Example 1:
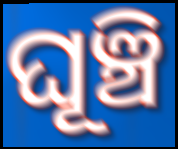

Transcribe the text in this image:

ଘୂଞ୍ଚି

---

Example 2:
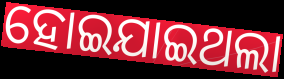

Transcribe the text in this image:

ହୋଇଯାଇଥଲା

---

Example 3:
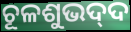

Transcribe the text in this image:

ଚୂଳଶୁଭଦ୍‍ଦ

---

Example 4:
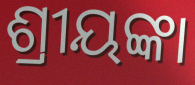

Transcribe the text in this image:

ଶ୍ରୀୟଙ୍କା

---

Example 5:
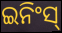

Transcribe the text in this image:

ଇନିଂସ୍